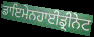
ਡਾਇਮੇਨਹਾਈਡ੍ਰੀਨੇਟ